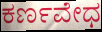
ಕರ್ಣವೇಧ